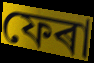
ফেৰা